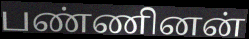
பண்ணினன்